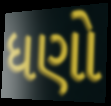
ધણો